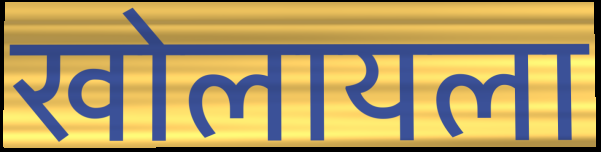
खोलायला